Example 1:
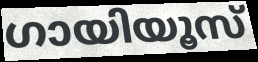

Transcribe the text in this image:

ഗായിയൂസ്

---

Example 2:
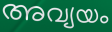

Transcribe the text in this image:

അവ്യയം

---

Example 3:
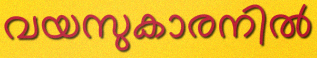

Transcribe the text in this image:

വയസുകാരനിൽ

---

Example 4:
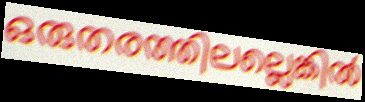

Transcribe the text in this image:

ഒരുതരത്തിലല്ലെങ്കിൽ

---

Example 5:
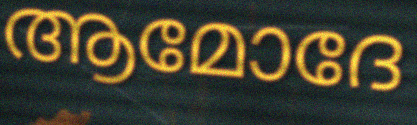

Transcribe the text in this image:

ആമോദേ